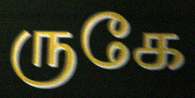
ருகே